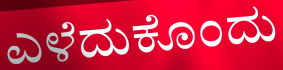
ಎಳೆದುಕೊಂದು